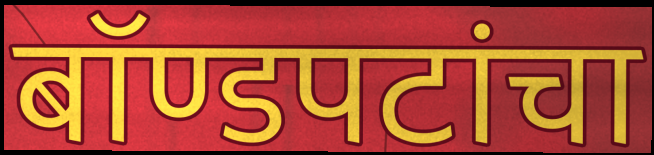
बॉण्डपटांचा